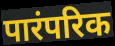
पारंपरिक